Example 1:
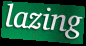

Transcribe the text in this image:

lazing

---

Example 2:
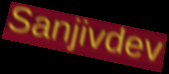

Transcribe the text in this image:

Sanjivdev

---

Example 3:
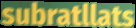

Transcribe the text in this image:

subratllats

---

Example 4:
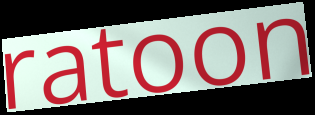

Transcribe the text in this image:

ratoon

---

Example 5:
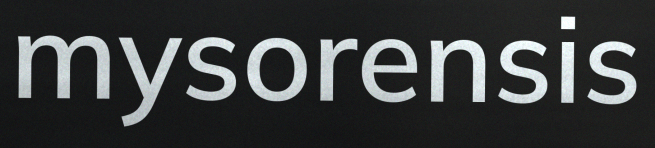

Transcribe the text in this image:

mysorensis